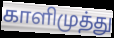
காளிமுத்து